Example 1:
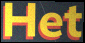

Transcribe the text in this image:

Het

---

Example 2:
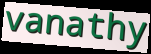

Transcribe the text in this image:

vanathy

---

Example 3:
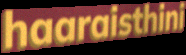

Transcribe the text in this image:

haaraisthini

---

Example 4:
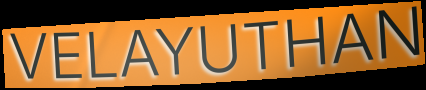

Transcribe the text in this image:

VELAYUTHAN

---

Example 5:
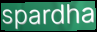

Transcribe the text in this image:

spardha